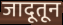
जादूतून